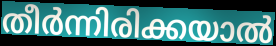
തീർന്നിരിക്കയാൽ